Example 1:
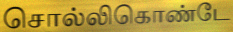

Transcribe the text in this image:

சொல்லிகொண்டே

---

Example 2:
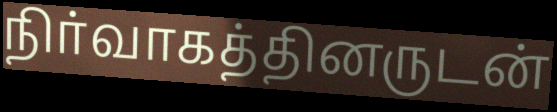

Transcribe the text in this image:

நிர்வாகத்தினருடன்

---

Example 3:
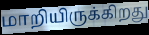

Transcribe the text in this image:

மாறியிருக்கிறது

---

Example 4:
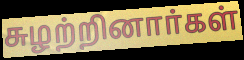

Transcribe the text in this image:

சுழற்றினார்கள்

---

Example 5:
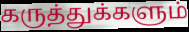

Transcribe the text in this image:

கருத்துக்களும்